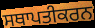
ਸਥਾਪਤੀਕਰਨ